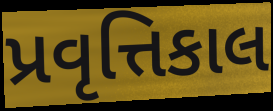
પ્રવૃત્તિકાલ